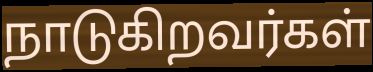
நாடுகிறவர்கள்